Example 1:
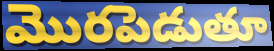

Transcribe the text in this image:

మొరపెడుతూ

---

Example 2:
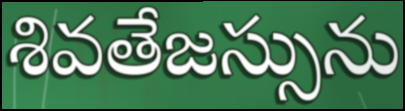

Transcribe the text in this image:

శివతేజస్సును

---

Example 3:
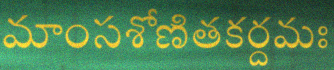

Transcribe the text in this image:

మాంసశోణితకర్దమః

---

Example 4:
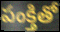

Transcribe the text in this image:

పంక్తితో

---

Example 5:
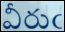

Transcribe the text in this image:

వీరుఁ